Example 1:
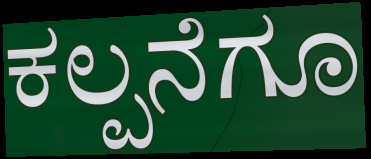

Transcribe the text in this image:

ಕಲ್ಪನೆಗೂ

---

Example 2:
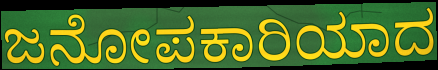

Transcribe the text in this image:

ಜನೋಪಕಾರಿಯಾದ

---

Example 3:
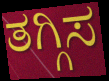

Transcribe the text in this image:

ತಗ್ಗಿಸ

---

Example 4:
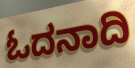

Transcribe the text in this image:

ಓದನಾದಿ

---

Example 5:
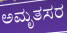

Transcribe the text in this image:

ಅಮೃತಸರ